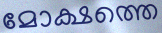
മോക്ഷത്തെ